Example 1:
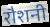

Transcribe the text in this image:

रौशनी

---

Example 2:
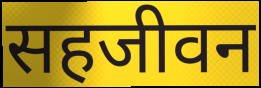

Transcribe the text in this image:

सहजीवन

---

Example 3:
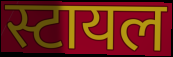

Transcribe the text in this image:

स्टायल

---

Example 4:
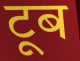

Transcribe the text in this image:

टूब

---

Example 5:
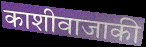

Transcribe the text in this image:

काशीवाजाकी